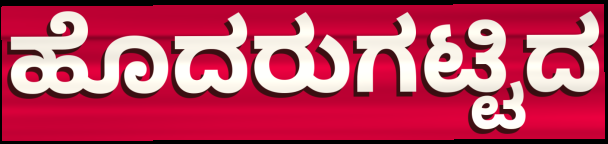
ಹೊದರುಗಟ್ಟಿದ